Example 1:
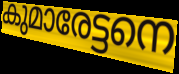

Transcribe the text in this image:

കുമാരേട്ടനെ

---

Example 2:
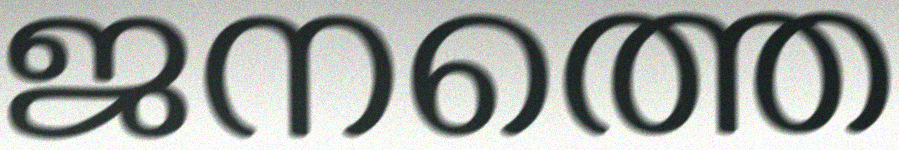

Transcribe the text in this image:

ജനത്തെ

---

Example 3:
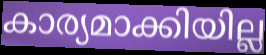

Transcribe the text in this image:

കാര്യമാക്കിയില്ല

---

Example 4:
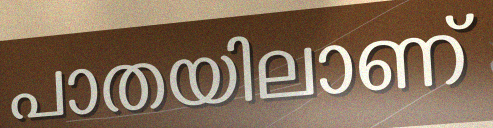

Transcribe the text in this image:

പാതയിലാണ്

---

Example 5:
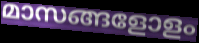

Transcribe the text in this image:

മാസങ്ങളോളം